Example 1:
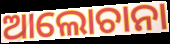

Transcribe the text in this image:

ଆଲୋଚାନା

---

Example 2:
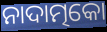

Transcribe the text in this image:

ନାଦାତ୍ମକୋ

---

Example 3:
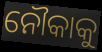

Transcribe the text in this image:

ନୌକାକୁ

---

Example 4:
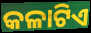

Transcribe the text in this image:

କଳାଟିଏ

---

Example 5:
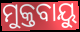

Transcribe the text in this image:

ମୁକ୍ତବାୟୁ